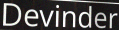
Devinder